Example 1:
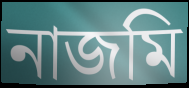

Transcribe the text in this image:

নাজমি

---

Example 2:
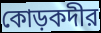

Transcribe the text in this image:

কোড়কদীর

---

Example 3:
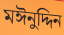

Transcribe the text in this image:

মঈনুদ্দিন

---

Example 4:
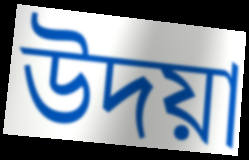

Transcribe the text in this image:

উদয়া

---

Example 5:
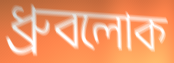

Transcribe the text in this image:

ধ্রুবলোক